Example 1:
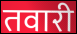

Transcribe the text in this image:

तवारी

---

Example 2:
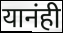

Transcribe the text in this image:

यानंही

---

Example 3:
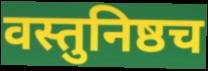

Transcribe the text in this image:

वस्तुनिष्ठच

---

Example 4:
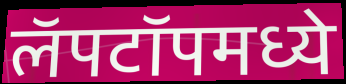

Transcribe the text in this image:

लॅपटॉपमध्ये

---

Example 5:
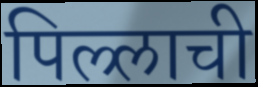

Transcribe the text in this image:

पिल्लाची